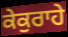
ਕੇਕੁਰਾਹੇ